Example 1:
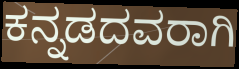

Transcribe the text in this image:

ಕನ್ನಡದವರಾಗಿ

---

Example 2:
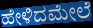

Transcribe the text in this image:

ಹೇಳಿದಮೇಲೆ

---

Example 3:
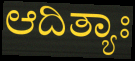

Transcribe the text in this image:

ಆದಿತ್ಯಾಃ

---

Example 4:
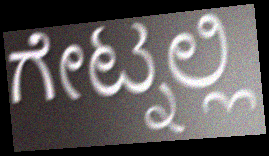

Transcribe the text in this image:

ಗೇಟ್ನಲ್ಲಿ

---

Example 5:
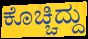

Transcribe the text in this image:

ಕೊಚ್ಚಿದ್ದು